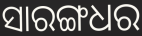
ସାରଙ୍ଗଧର